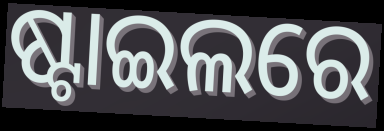
ଷ୍ଟାଇଲରେ